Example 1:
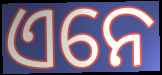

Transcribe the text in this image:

ଏନେ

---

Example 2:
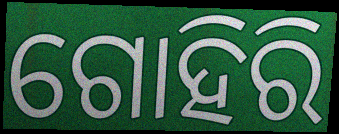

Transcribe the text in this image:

ଗୋହିରି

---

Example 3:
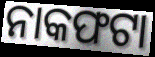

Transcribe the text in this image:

ନାକଫଟା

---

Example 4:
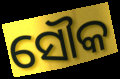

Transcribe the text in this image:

ସୌକ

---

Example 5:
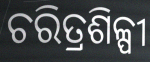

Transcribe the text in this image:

ଚରିତ୍ରଶିଳ୍ପୀ